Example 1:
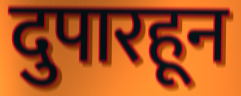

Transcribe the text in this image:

दुपारहून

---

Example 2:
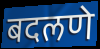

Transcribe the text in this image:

बदलणे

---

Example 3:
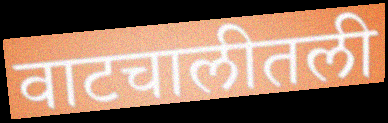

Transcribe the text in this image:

वाटचालीतली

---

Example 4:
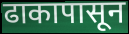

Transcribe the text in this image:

ढाकापासून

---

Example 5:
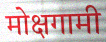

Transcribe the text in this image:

मोक्षगामी